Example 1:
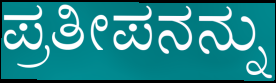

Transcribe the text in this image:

ಪ್ರತೀಪನನ್ನು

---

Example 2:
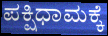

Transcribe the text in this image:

ಪಕ್ಷಿಧಾಮಕ್ಕೆ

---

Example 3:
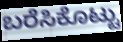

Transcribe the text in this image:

ಬರೆಸಿಕೊಟ್ಟು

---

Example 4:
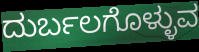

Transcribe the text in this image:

ದುರ್ಬಲಗೊಳ್ಳುವ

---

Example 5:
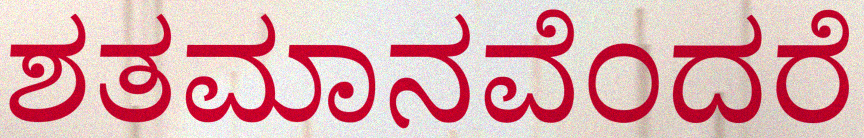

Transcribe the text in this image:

ಶತಮಾನವೆಂದರೆ